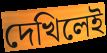
দেখিলেই